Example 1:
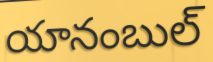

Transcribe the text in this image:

యానంబుల్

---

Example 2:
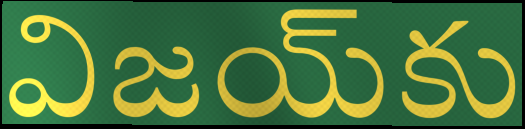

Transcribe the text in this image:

విజయ్‌కు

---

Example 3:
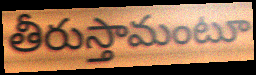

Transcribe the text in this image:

తీరుస్తామంటూ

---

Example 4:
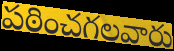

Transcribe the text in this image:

పఠించగలవారు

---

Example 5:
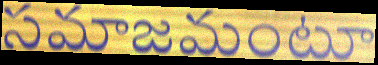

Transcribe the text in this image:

సమాజమంటూ